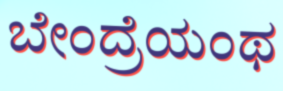
ಬೇಂದ್ರೆಯಂಥ